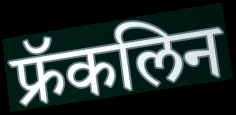
फ्रॅकलिन